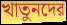
খাতুনদের